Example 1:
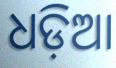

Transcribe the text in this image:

ଧଡ଼ିଆ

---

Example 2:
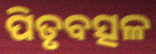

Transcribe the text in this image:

ପିତୃବତ୍ସଳ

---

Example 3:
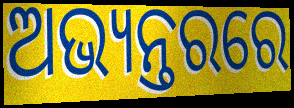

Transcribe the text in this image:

ଅଭ୍ୟନ୍ତରରେ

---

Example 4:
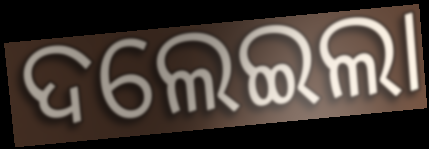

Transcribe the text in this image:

ଦଲେଇଲା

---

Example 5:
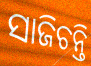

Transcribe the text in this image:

ସାଜିଚନ୍ତି